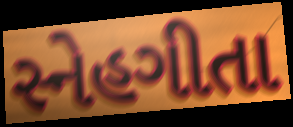
સ્નેહગીતા